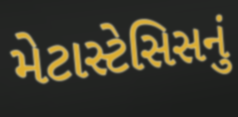
મેટાસ્ટેસિસનું